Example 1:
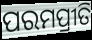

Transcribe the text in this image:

ପରମପ୍ରୀତି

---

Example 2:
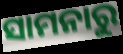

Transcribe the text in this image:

ସାମନାରୁ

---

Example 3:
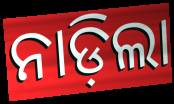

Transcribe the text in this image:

ନାଡ଼ିଲା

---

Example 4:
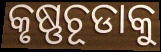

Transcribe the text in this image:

କୃଷ୍ଣଚୂଡାକୁ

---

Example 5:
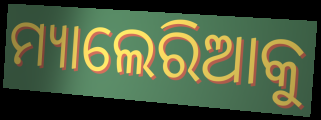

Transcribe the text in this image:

ମ୍ୟାଲେରିଆକୁ